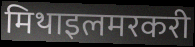
मिथाइलमरकरी